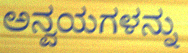
ಅನ್ವಯಗಳನ್ನು